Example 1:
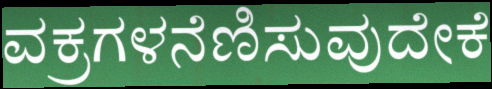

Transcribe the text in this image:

ವಕ್ರಗಳನೆಣಿಸುವುದೇಕೆ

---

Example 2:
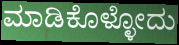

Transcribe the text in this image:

ಮಾಡಿಕೊಳ್ಳೋದು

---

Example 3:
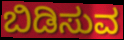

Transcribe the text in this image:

ಬಿಡಿಸುವ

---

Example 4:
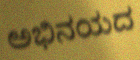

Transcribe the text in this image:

ಅಭಿನಯದ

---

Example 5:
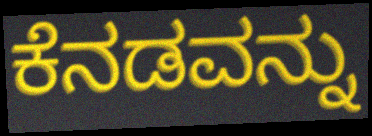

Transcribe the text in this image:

ಕೆನಡವನ್ನು